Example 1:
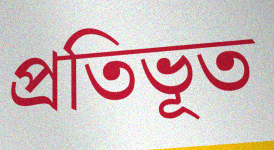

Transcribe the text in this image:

প্রতিভূত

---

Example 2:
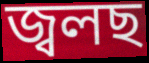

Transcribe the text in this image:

জ্বলছ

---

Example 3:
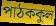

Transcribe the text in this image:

পাঠককুল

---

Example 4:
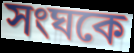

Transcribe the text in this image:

সংঘকে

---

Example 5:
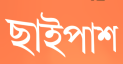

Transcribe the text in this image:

ছাইপাশ